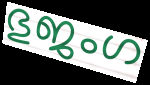
ഭുജംഗ